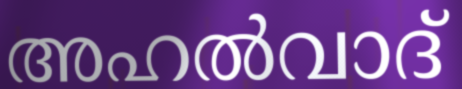
അഹൽവാദ്